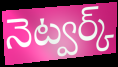
నెట్వర్క్